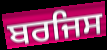
ਬਰਜਿਸ